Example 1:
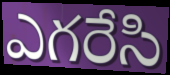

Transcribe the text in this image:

ఎగరేసి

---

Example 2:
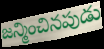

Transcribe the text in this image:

జన్మించినపుడు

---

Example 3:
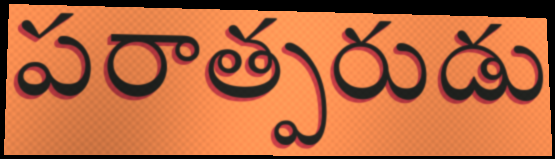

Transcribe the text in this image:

పరాత్పరుడు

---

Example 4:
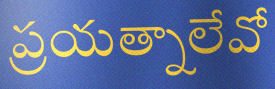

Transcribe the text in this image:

ప్రయత్నాలేవో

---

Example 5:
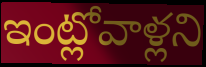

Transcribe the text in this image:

ఇంట్లోవాళ్లని